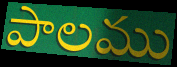
పాలము